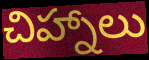
చిహ్నాలు